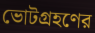
ভোটগ্রহণের